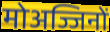
मोअज्जिनों